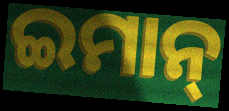
ଇମାନ୍